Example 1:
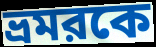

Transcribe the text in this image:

ভ্রমরকে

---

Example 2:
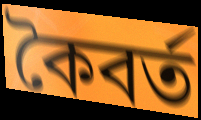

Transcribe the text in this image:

কৈবর্ত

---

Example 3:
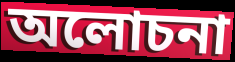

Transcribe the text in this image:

অলোচনা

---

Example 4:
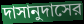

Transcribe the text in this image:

দাসানুদাসের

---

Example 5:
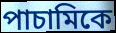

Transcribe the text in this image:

পাচামিকে